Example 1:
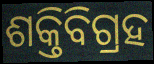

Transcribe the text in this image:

ଶକ୍ତିବିଗ୍ରହ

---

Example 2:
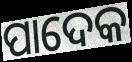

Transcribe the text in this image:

ପାଦେକ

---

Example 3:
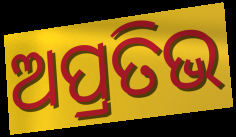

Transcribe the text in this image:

ଅପ୍ରତିଭ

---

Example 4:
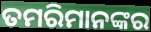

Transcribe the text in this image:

ତମରିମାନଙ୍କର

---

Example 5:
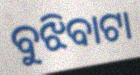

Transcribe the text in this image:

ବୁଝିବାଟା